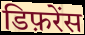
डिफ़रेंस